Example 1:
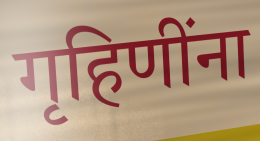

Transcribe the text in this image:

गृहिणींना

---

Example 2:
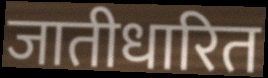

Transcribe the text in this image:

जातीधारित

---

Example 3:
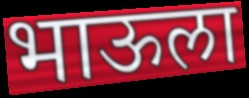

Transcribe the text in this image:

भाऊला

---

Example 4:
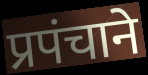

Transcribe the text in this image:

प्रपंचाने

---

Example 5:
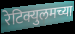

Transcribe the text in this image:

रेटिक्युलमच्या